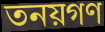
তনয়গণ